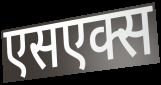
एसएक्स